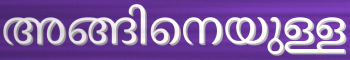
അങ്ങിനെയുള്ള